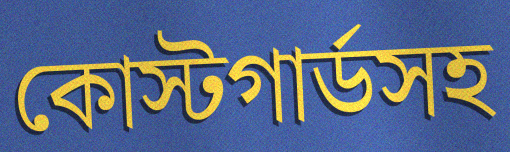
কোস্টগার্ডসহ